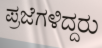
ಪ್ರಜೆಗಳಿದ್ದರು